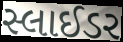
સ્લાઈડર